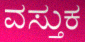
ವಸ್ತುಕ